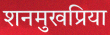
शनमुखप्रिया